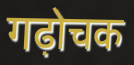
गढ़ोचक